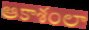
ఆకాశంలా